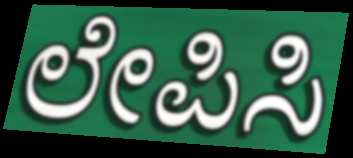
ಲೇಪಿಸಿ